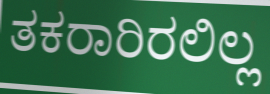
ತಕರಾರಿರಲಿಲ್ಲ